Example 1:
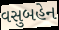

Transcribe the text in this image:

વસુબહેન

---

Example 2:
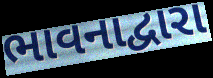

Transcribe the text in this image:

ભાવનાદ્વારા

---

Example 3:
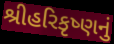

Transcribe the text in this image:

શ્રીહરિકૃષ્ણનું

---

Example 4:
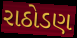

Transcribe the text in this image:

રાઠોડણ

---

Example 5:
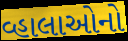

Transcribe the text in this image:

વ્હાલાઓનો